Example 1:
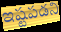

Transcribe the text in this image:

ఇష్టపడని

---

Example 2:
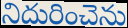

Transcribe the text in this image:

నిదురించెను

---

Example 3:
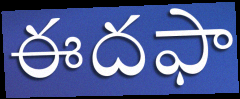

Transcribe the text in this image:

ఈదఫా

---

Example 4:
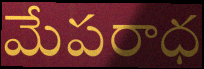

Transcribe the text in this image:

మేపరాధ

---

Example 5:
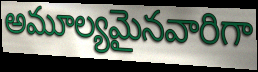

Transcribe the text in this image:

అమూల్యమైనవారిగా